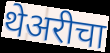
थेअरीचा